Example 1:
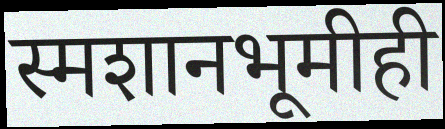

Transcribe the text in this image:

स्मशानभूमीही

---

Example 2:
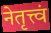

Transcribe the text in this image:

नेतृत्त्वं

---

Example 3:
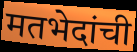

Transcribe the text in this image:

मतभेदांची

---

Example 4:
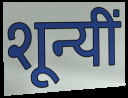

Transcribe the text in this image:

शून्यीं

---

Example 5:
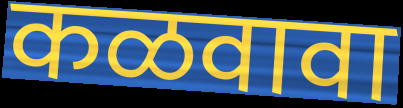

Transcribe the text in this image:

कळवावा